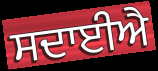
ਸਦਾਈਐ